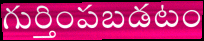
గుర్తింపబడటం